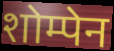
शोम्पेन